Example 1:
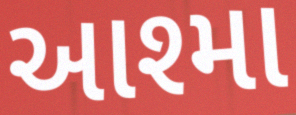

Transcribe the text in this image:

આશ્મા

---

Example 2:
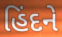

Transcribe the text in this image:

હિંદને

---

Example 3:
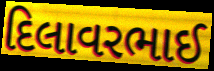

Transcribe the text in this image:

દિલાવરભાઈ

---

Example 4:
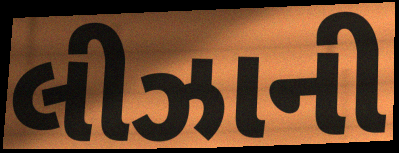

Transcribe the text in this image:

લીઝાની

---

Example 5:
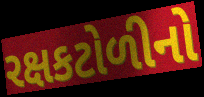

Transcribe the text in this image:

રક્ષકટોળીનો